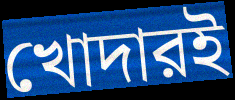
খোদারই